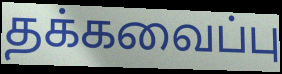
தக்கவைப்பு